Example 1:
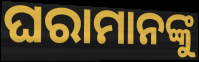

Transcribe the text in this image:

ଘରାମାନଙ୍କୁ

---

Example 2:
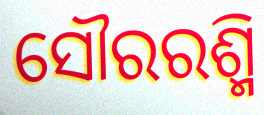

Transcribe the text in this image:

ସୌରରଶ୍ମି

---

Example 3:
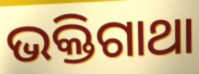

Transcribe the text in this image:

ଭକ୍ତିଗାଥା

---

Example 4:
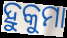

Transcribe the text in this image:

ହୁକୁମା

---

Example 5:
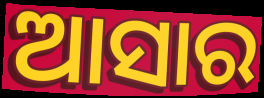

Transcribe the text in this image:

ଆସାର